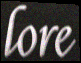
lore